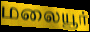
மலையூர்